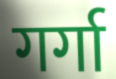
गर्गा